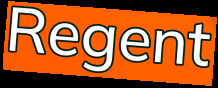
Regent